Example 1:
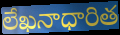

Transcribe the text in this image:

లేఖనాధారిత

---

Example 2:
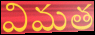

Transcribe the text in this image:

విమత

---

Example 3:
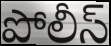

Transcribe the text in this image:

పోలీస్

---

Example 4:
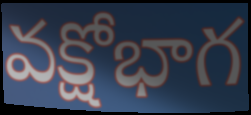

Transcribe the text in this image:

వక్షోభాగ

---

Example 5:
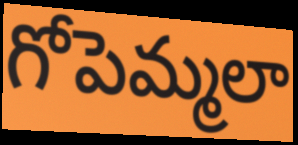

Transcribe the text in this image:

గోపెమ్మలా